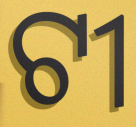
ଟୀ